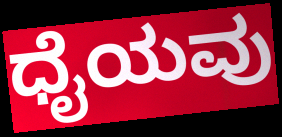
ಧೈಯವು